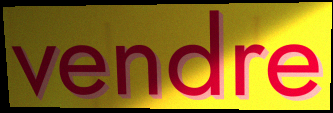
vendre